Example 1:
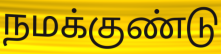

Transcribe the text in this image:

நமக்குண்டு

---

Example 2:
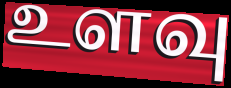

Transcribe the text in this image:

உளவு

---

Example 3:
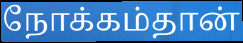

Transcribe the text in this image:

நோக்கம்தான்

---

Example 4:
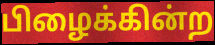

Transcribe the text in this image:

பிழைக்கின்ற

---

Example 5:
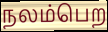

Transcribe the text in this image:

நலம்பெற